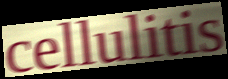
cellulitis